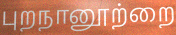
புறநானூற்றை